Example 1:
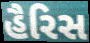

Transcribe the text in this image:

હૈરિસ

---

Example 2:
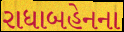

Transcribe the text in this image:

રાધાબહેનના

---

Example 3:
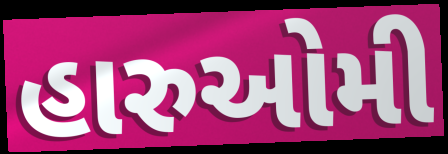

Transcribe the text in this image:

હારુઓમી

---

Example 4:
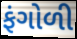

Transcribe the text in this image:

ફંગોળી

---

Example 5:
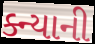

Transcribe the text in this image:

ક્ન્યાની